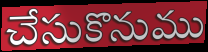
చేసుకొనుము